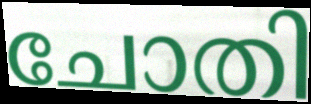
ചോതി